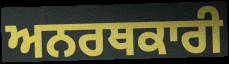
ਅਨਰਥਕਾਰੀ